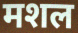
मशल